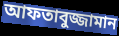
আফতাবুজ্জামান